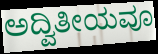
ಅದ್ವಿತೀಯವೂ